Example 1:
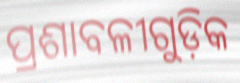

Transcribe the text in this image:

ପ୍ରଶାବଳୀଗୁଡ଼ିକ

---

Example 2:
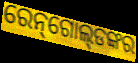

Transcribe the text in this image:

ରେନ୍‌ଗୋଲ୍‌ଡଙ୍କର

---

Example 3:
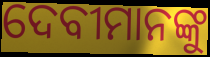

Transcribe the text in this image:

ଦେବୀମାନଙ୍କୁ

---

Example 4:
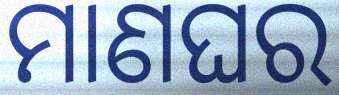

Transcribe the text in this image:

ମାଣଘର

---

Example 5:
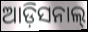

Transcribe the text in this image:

ଆଡ଼ିସନାଲ୍